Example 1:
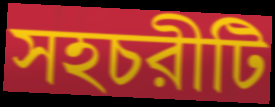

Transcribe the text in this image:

সহচরীটি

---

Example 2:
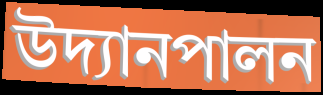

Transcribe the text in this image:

উদ্যানপালন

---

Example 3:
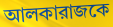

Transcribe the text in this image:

আলকারাজকে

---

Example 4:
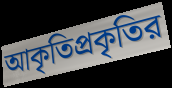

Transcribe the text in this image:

আকৃতিপ্রকৃতির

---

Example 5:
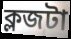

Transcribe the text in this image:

ক্লজটা